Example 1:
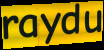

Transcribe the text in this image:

raydu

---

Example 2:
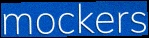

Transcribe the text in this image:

mockers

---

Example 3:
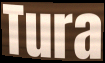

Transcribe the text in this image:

Tura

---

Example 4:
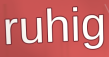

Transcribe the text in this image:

ruhig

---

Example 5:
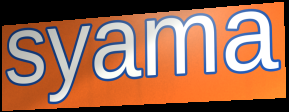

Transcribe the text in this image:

syama